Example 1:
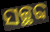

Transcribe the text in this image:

ସଚ୍ଛବ୍ଦ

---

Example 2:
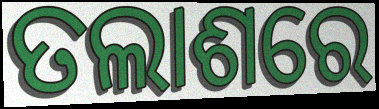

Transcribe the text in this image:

ତଲାଶରେ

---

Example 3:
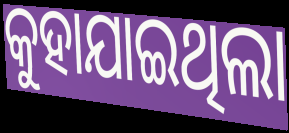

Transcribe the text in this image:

କୁହାଯାଇଥିଲା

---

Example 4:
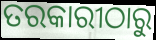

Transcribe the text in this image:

ତରକାରୀଠାରୁ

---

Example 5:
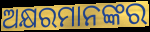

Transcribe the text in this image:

ଅକ୍ଷରମାନଙ୍କର